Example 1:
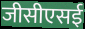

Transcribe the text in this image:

जीसीएसई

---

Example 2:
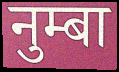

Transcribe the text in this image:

नुम्बा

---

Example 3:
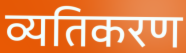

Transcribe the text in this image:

व्यतिकरण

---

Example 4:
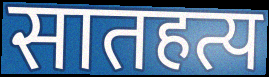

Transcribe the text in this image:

सातहत्य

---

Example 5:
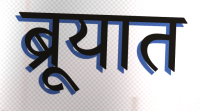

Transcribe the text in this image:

ब्रूयात